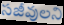
సజీవులని